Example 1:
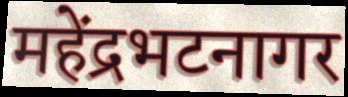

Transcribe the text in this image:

महेंद्रभटनागर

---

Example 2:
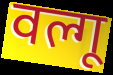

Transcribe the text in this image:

वल्गू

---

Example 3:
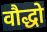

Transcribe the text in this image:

वौद्धो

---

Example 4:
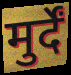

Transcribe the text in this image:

मुर्दें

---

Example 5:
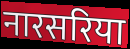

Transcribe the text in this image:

नारसरिया